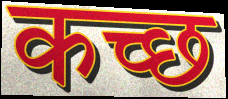
कच्छ